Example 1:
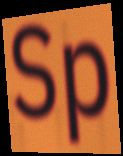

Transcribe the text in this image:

Sp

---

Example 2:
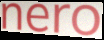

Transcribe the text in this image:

nero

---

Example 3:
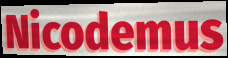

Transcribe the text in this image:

Nicodemus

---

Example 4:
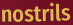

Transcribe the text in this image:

nostrils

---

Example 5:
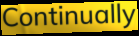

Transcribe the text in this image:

Continually